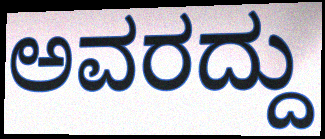
ಅವರದ್ದು